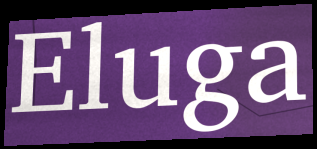
Eluga